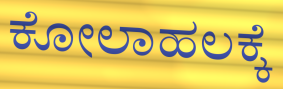
ಕೋಲಾಹಲಕ್ಕೆ